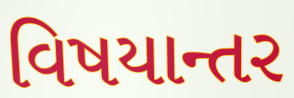
વિષયાન્તર